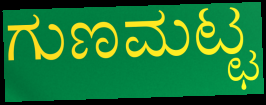
ಗುಣಮಟ್ಟ